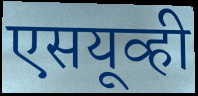
एसयूव्ही